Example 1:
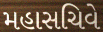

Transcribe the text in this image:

મહાસચિવે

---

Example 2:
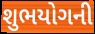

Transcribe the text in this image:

શુભયોગની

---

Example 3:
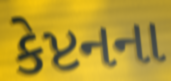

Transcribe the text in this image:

કેપ્ટનના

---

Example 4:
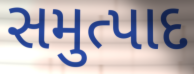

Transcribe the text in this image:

સમુત્પાદ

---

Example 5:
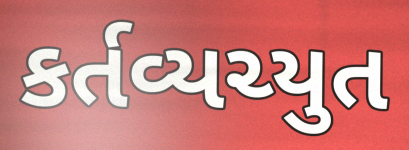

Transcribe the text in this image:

કર્તવ્યચ્યુત